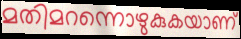
മതിമറന്നൊഴുകുകയാണ്